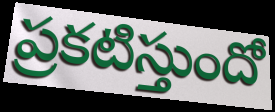
ప్రకటిస్తుందో